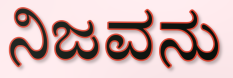
ನಿಜವನು